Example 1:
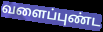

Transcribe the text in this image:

வளைப்புண்ட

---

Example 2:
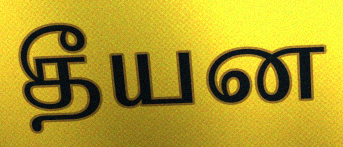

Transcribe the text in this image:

தீயன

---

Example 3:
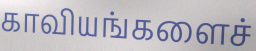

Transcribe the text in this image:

காவியங்களைச்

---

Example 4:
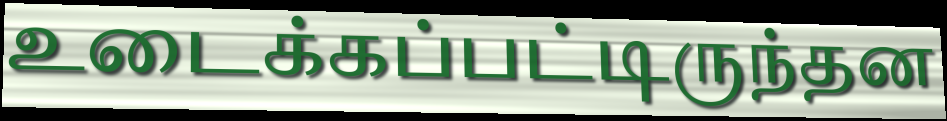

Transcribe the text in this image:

உடைக்கப்பட்டிருந்தன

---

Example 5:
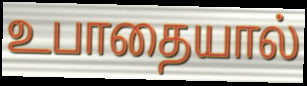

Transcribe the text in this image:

உபாதையால்